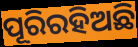
ପୂରିରହିଅଛି